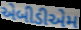
એબીડીએમ